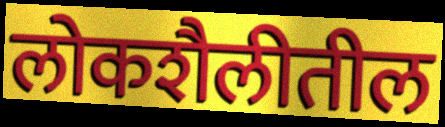
लोकशैलीतील